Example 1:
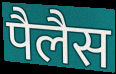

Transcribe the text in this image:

पैलैस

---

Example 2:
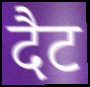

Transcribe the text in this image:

दैट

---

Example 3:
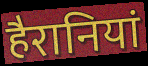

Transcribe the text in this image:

हैरानियां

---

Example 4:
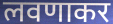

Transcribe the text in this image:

लवणाकर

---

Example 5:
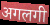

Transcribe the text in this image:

अगलगी